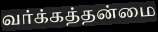
வர்க்கத்தன்மை